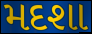
મદશા